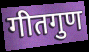
गीतगुण